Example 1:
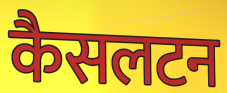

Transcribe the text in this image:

कैसलटन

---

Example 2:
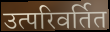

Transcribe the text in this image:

उत्परिवर्तित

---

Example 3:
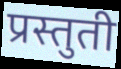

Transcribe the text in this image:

प्रस्तुती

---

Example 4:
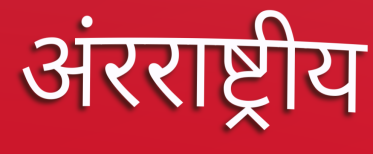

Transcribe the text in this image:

अंरराष्ट्रीय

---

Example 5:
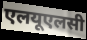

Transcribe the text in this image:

एलयूएलसी